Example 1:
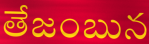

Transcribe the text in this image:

తేజంబున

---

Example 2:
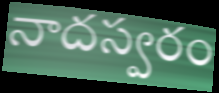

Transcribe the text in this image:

నాదస్వరం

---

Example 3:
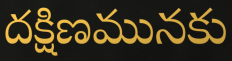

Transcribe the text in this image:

దక్షిణమునకు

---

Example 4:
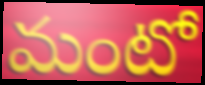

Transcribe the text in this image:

మంటో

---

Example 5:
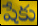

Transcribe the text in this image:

షేకు